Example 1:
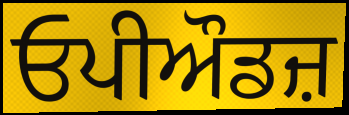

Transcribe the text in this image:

ਓਪੀਔਡਜ਼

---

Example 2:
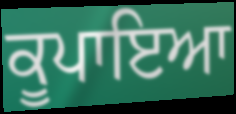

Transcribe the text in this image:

ਕੂਪਾਇਆ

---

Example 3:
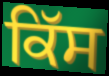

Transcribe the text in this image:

ਕਿੱਸ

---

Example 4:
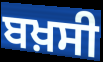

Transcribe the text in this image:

ਬਖ਼ਸੀ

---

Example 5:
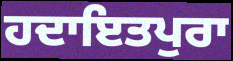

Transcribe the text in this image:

ਹਦਾਇਤਪੁਰਾ